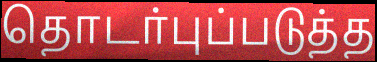
தொடர்புப்படுத்த